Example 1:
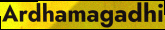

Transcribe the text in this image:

Ardhamagadhi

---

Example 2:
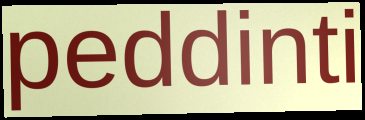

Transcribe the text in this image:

peddinti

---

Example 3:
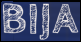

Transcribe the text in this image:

BIJA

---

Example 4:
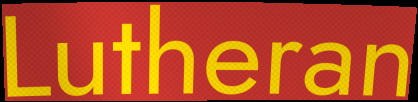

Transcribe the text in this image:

Lutheran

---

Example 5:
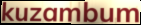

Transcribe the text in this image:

kuzambum